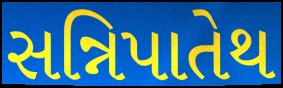
સન્નિપાતેથ